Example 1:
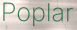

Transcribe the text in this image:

Poplar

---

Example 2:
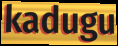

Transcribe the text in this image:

kadugu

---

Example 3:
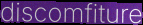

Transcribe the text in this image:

discomfiture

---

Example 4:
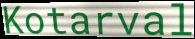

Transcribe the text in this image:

Kotarval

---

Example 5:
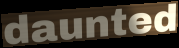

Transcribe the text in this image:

daunted